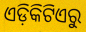
ଏଡ଼ିକିଟିଏରୁ